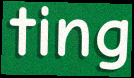
ting